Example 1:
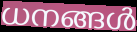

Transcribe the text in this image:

ധനങ്ങൾ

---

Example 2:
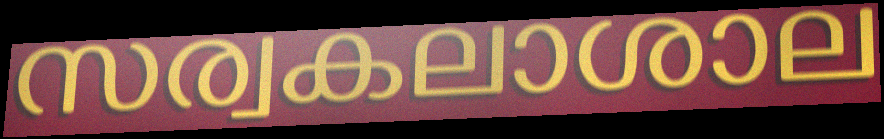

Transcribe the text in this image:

സര്വകലാശാല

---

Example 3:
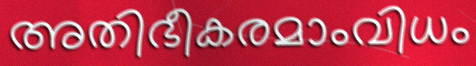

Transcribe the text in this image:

അതിഭീകരമാംവിധം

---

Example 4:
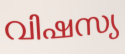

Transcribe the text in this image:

വിഷസ്യ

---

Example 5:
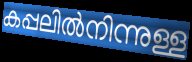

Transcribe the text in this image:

കപ്പലിൽനിന്നുള്ള